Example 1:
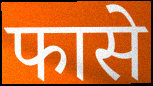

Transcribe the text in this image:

फासे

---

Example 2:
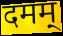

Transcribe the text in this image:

दमम्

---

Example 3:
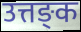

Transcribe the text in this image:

उत्तङ्क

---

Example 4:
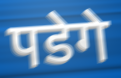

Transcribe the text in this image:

पडेगे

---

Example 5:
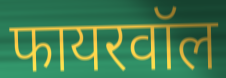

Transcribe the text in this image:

फायरवॉल